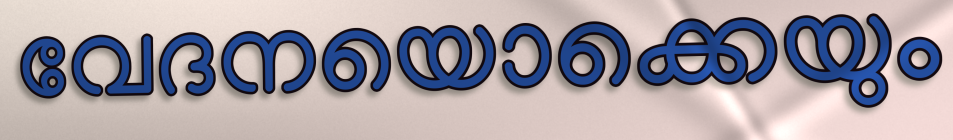
വേദനയൊക്കെയും